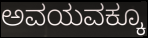
ಅವಯವಕ್ಕೂ